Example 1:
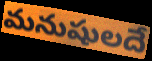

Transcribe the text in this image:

మనుషులదే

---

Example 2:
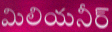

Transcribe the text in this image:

మిలియనీర్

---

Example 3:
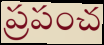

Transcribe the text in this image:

ప్రపంచ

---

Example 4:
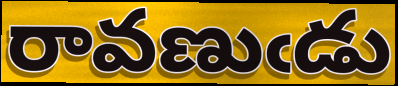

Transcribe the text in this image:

రావణుఁడు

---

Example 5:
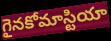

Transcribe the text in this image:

గైనకోమాస్టియా